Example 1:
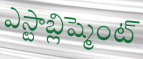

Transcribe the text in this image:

ఎస్టాబ్లిష్మెంట్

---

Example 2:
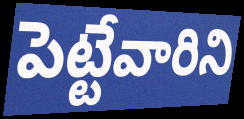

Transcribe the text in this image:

పెట్టేవారిని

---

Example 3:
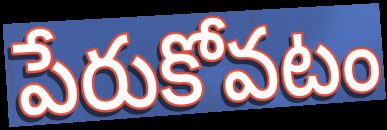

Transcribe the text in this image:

పేరుకోవటం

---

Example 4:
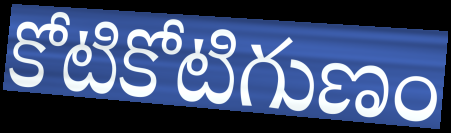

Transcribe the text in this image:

కోటికోటిగుణం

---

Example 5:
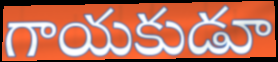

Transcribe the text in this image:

గాయకుడూ